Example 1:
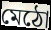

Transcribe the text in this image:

মেঠো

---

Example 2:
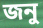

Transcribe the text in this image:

জনু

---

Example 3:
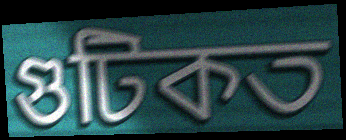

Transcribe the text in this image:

গুটিকত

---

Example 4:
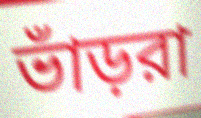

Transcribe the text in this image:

ভাঁড়রা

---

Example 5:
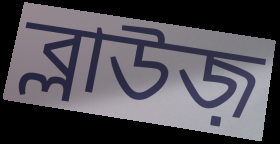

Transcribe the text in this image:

ব্লাউজ়